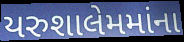
યરુશાલેમમાંના